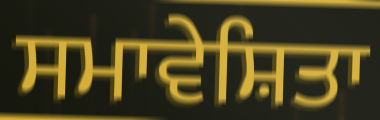
ਸਮਾਵੇਸ਼ਿਤਾ